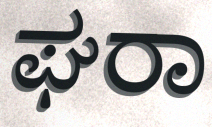
ಘರಾ